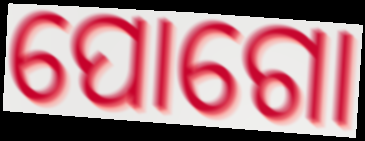
ପୋଗୋ